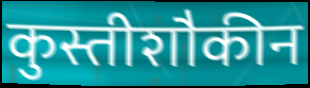
कुस्तीशौकीन